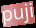
puji